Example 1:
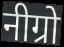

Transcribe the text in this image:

नीग्रो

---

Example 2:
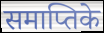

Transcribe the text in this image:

समाप्तिके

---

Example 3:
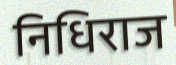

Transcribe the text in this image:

निधिराज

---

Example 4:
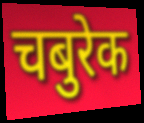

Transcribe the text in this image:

चबुरेक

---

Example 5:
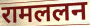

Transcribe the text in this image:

रामललन